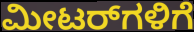
ಮೀಟರ್‌ಗಳಿಗೆ